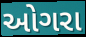
ઓગરા